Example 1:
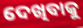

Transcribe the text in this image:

ଦେଖିବାକୁ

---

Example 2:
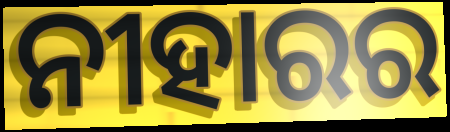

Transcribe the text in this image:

ନୀହାରର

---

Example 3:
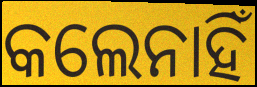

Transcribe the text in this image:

କଲେନାହିଁ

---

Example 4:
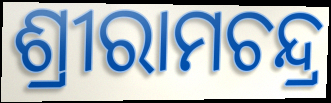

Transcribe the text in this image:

ଶ୍ରୀରାମଚନ୍ଦ୍ର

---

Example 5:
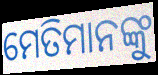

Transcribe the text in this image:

ମେତିମାନଙ୍କୁ